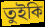
তুইকি